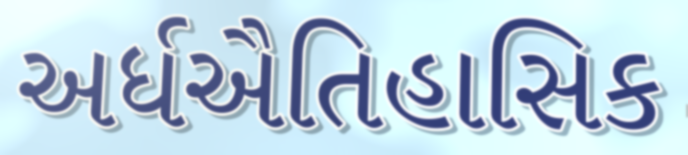
અર્ધઐતિહાસિક